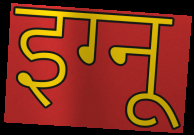
इग्नू